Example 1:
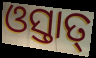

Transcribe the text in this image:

ଓସ୍ତାତ୍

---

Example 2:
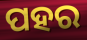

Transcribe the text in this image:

ପହର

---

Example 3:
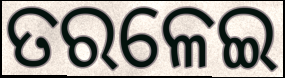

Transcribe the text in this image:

ତରଳେଇ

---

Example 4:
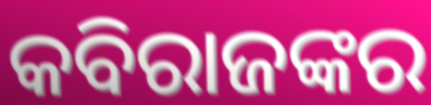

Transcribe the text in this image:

କବିରାଜଙ୍କର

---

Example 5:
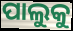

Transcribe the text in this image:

ପାଲୁକୁ